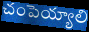
చంపెయ్యాలి